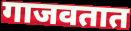
गाजवतात